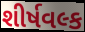
શીર્ષવલ્ક